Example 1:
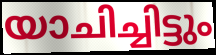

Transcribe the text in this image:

യാചിച്ചിട്ടും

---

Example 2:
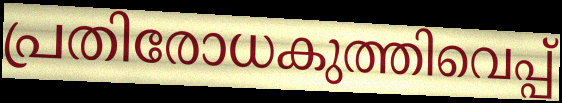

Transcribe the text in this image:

പ്രതിരോധകുത്തിവെപ്പ്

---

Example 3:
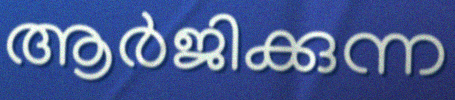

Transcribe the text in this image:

ആർജിക്കുന്ന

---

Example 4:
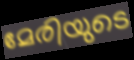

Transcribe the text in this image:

മേരിയുടെ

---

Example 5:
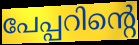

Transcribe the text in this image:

പേപ്പറിന്റെ